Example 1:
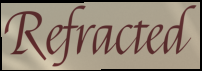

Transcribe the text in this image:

Refracted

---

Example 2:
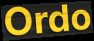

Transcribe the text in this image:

Ordo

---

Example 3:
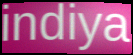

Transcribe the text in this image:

indiya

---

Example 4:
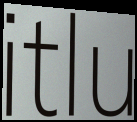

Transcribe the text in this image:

itlu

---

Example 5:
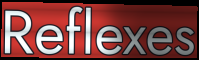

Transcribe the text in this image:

Reflexes